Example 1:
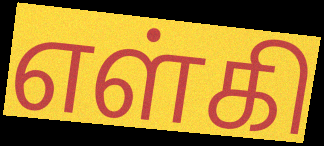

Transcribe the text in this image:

எள்கி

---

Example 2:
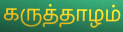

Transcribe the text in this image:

கருத்தாழம்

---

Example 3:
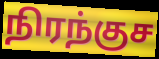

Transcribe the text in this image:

நிரந்குச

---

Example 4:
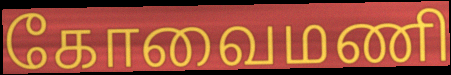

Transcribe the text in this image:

கோவைமணி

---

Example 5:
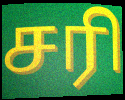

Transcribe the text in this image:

சரி